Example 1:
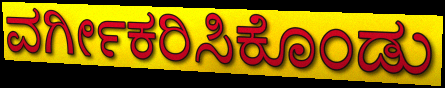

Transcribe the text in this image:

ವರ್ಗೀಕರಿಸಿಕೊಂಡು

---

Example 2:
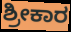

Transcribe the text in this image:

ಶ್ರೀಕಾರ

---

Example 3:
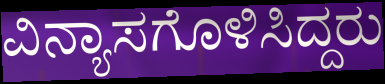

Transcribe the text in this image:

ವಿನ್ಯಾಸಗೊಳಿಸಿದ್ದರು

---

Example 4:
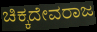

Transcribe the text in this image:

ಚಿಕ್ಕದೇವರಾಜ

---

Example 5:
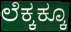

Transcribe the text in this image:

ಲೆಕ್ಕಕ್ಕೂ